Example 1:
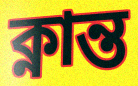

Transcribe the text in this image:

ক্নান্ত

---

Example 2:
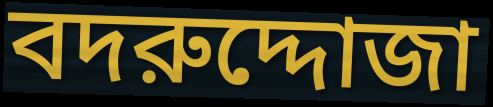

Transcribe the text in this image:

বদরুদ্দোজা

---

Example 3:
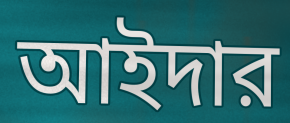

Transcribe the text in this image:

আইদার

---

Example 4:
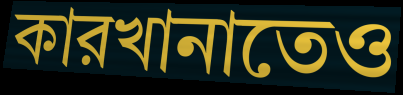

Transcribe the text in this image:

কারখানাতেও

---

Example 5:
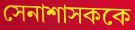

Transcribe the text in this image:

সেনাশাসককে